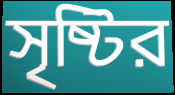
সৃষ্টির